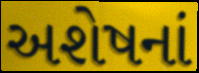
અશેષનાં